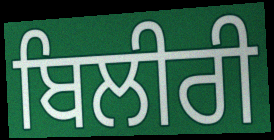
ਬਿਲੀਰੀ